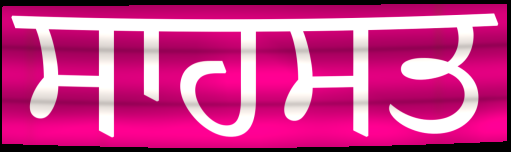
ਸਾਹਸਤ